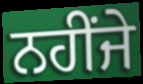
ਨਹੀਂਜੇ